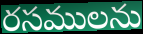
రసములను